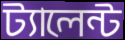
ট্যালেন্ট